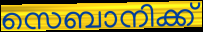
സെബാനിക്ക്